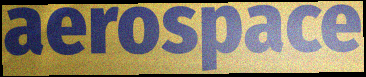
aerospace